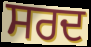
ਸਰਦ